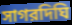
সাগরদিঘি